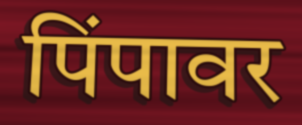
पिंपावर